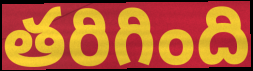
తరిగింది